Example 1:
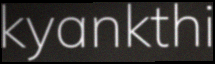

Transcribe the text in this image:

kyankthi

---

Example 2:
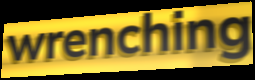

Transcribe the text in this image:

wrenching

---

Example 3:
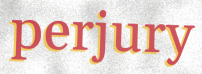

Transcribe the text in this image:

perjury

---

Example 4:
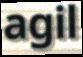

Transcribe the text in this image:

agil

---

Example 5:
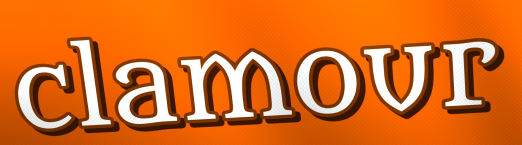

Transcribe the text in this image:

clamour